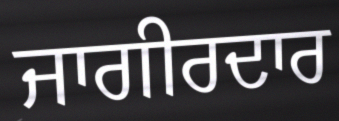
ਜਾਗੀਰਦਾਰ